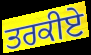
ਤਰਕੀਏ